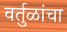
वर्तुळांचा